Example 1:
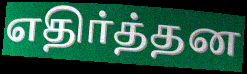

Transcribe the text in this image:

எதிர்த்தன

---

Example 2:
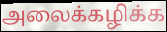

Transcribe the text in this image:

அலைக்கழிக்க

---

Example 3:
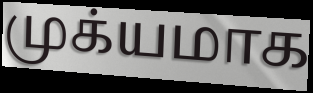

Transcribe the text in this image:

முக்யமாக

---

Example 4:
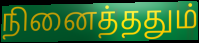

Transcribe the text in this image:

நினைத்ததும்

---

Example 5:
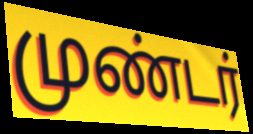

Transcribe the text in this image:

முண்டர்